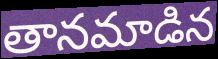
తానమాడిన